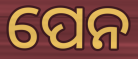
ପେନ